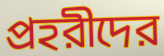
প্রহরীদের